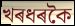
খৰধৰকৈ